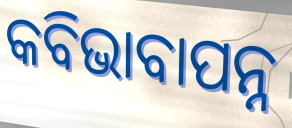
କବିଭାବାପନ୍ନ